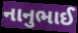
નાનુભાઈ